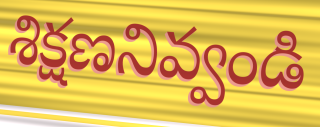
శిక్షణనివ్వండి